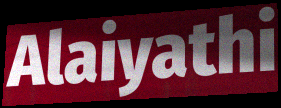
Alaiyathi